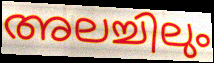
അലച്ചിലും